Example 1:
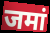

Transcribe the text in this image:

जमां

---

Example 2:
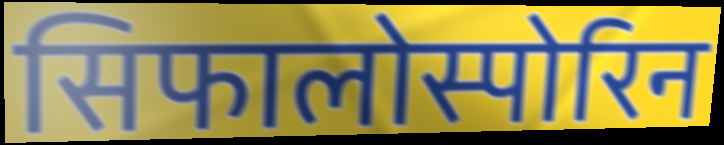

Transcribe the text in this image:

सिफालोस्पोरिन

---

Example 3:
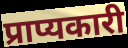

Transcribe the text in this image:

प्राप्यकारी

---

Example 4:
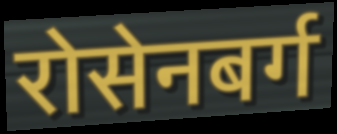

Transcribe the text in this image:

रोसेनबर्ग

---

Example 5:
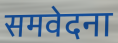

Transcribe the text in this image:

समवेदना